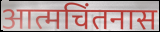
आत्मचिंतनास